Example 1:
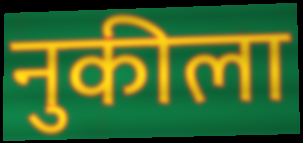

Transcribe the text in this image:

नुकीला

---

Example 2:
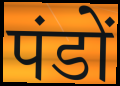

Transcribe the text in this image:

पंडों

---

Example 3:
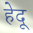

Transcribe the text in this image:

हेदू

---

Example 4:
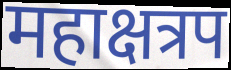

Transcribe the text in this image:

महाक्षत्रप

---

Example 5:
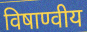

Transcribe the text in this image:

विषाण्वीय